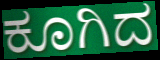
ಕೂಗಿದ